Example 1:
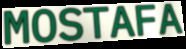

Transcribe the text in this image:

MOSTAFA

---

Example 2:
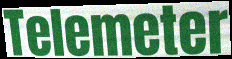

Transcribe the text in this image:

Telemeter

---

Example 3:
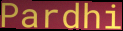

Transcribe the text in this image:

Pardhi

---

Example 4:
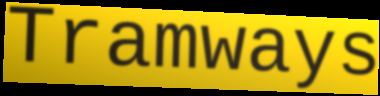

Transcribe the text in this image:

Tramways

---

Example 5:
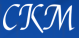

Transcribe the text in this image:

CKM